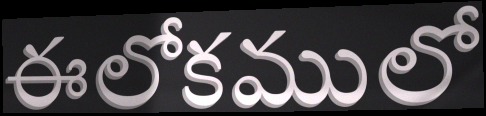
ఈలోకములో